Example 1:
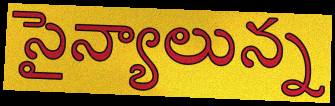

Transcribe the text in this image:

సైన్యాలున్న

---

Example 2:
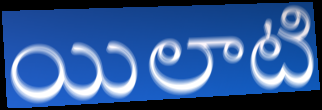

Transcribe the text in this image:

యిలాటి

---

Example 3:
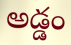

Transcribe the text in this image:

అడ్డం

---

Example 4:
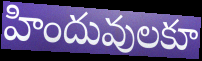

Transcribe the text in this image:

హిందువులకూ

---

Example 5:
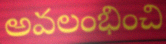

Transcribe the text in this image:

అవలంభించి